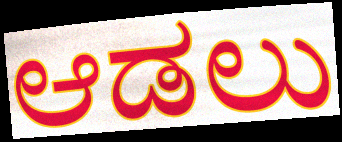
ಆಡಲು